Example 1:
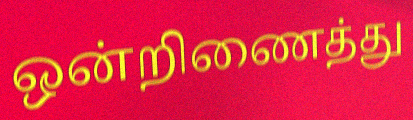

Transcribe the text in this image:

ஒன்றிணைத்து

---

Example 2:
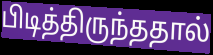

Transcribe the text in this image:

பிடித்திருந்ததால்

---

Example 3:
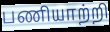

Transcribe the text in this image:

பணியாற்றி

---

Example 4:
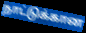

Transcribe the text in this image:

நாட்டுக்கான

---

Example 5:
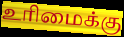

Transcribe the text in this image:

உரிமைக்கு